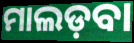
ମାଲଡ଼ବା